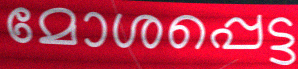
മോശപ്പെട്ട